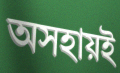
অসহায়ই